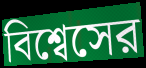
বিশ্বেসের